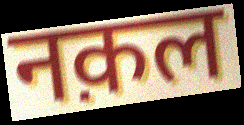
नक़ल